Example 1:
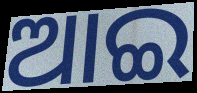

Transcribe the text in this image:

ଆଇ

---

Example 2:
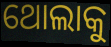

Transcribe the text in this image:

ଥୋଲାକୁ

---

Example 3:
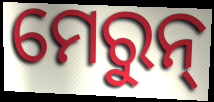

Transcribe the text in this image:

ମେରୁନ୍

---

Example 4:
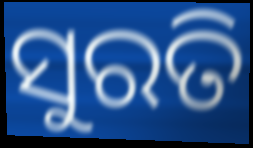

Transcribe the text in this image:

ସୁରତି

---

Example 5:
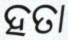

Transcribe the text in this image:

ହତା